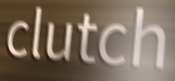
clutch